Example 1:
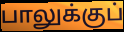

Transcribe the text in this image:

பாலுக்குப்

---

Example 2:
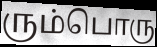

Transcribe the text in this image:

ரும்பொரு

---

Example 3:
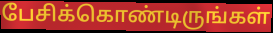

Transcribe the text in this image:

பேசிக்கொண்டிருங்கள்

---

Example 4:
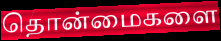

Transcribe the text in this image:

தொன்மைகளை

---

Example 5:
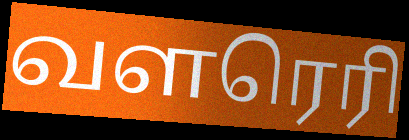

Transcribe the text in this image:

வளரெரி